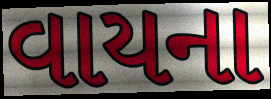
વાયના